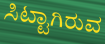
ಸಿಟ್ಟಾಗಿರುವ